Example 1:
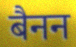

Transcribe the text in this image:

बैनन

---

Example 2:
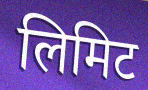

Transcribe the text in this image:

लिमिट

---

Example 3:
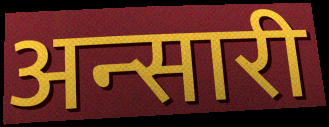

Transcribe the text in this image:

अन्सारी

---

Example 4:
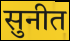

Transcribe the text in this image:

सुनीत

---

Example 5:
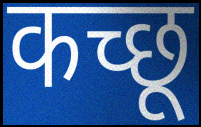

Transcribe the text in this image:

कच्छू